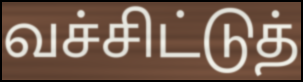
வச்சிட்டுத்